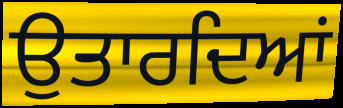
ਉਤਾਰਦਿਆਂ